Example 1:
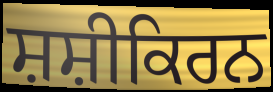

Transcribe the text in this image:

ਸ਼ਸ਼ੀਕਿਰਨ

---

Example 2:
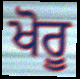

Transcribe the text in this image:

ਖੋਰੂ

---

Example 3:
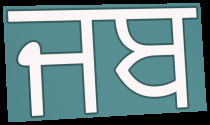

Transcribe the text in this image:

ਜਬ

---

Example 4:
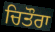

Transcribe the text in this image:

ਚਿਤੌਰਾ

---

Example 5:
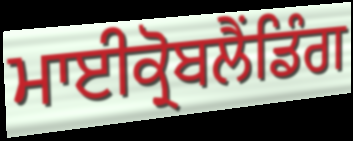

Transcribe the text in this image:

ਮਾਈਕ੍ਰੋਬਲੈਂਡਿੰਗ